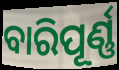
ବାରିପୂର୍ଣ୍ଣ